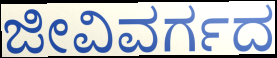
ಜೀವಿವರ್ಗದ